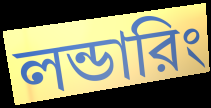
লন্ডারিং